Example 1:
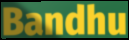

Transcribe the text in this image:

Bandhu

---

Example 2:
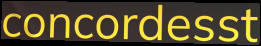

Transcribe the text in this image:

concordesst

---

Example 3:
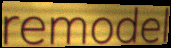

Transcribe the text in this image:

remodel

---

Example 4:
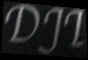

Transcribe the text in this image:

DJI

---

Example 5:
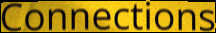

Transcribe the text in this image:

Connections